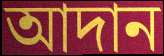
আদান